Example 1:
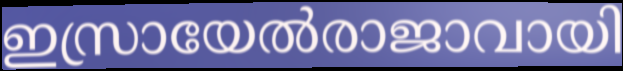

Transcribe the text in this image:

ഇസ്രായേൽരാജാവായി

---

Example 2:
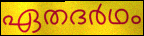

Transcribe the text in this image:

ഏതദർഥം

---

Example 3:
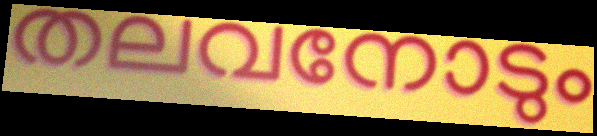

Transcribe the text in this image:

തലവനോടും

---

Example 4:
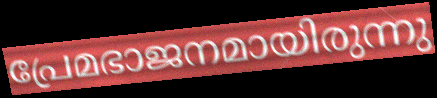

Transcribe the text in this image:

പ്രേമഭാജനമായിരുന്നു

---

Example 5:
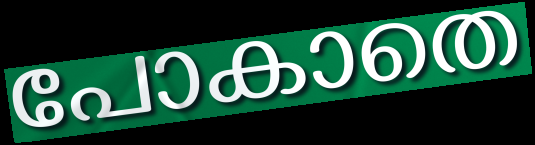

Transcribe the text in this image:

പോകാതെ